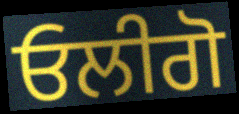
ਓਲੀਗੋ